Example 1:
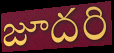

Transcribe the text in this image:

జూదరి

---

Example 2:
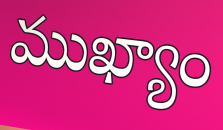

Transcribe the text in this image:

ముఖ్యాం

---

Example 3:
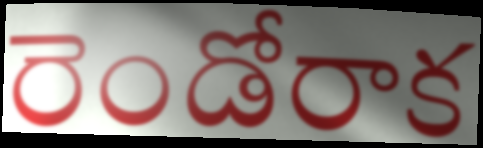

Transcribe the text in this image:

రెండోరాక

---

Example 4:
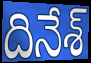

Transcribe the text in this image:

దినేశ్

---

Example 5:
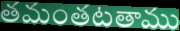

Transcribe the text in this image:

తమంతటతాము